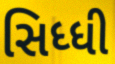
સિધ્ધી